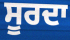
ਸੂਰਦਾ